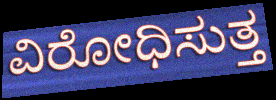
ವಿರೋಧಿಸುತ್ತ